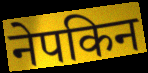
नेपकिन